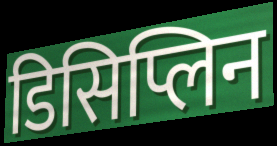
डिसिप्लिन